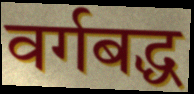
वर्गबद्ध